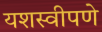
यशस्वीपणे